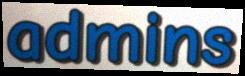
admins